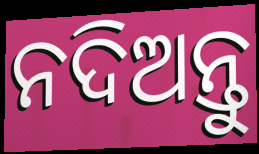
ନଦିଅନ୍ତୁ